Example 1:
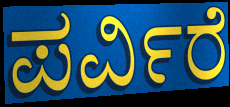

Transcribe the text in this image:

ಪರ್ವಿರೆ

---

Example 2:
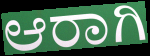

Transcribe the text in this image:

ಆರಾಗಿ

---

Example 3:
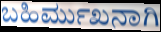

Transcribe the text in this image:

ಬಹಿರ್ಮುಖನಾಗಿ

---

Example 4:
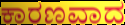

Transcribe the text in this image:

ಕಾರಣವಾದ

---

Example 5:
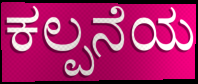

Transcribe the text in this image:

ಕಲ್ಪನೆಯ